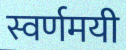
स्वर्णमयी